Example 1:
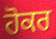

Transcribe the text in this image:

ਹੋਕਰ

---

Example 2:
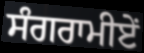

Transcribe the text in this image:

ਸੰਗਰਾਮੀਏਂ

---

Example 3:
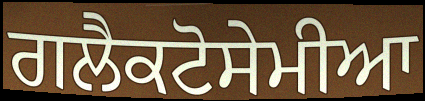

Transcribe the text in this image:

ਗਲੈਕਟੋਸੇਮੀਆ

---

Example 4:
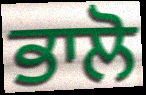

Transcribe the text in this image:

ਭਾਲੋ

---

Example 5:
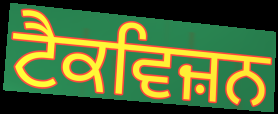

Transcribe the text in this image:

ਟੈਕਵਿਜ਼ਨ